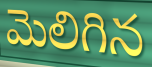
మెలిగిన